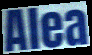
Alea